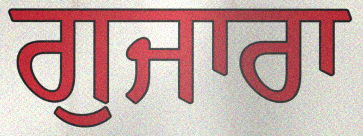
ਗੁਜਾਰਾ